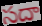
సదా